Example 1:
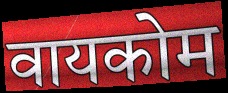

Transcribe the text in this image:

वायकोम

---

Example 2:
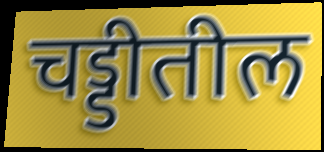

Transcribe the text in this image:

चड्डीतील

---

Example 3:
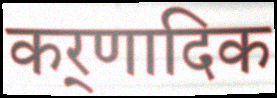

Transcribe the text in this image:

कर्णादिक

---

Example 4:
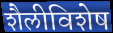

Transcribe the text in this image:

शैलीविशेष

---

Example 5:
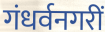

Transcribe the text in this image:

गंधर्वनगरीं